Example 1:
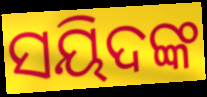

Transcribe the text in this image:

ସୟିଦଙ୍କ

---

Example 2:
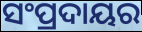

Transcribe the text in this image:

ସଂପ୍ରଦାୟର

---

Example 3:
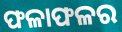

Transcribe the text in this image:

ଫଳାଫଳର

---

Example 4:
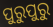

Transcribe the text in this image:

ପୁରୁପୁରୁ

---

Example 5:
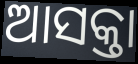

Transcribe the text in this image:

ଆସକ୍ତା